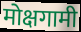
मोक्षगामी